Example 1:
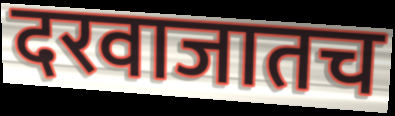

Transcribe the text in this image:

दरवाजातच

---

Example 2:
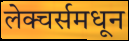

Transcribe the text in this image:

लेक्चर्समधून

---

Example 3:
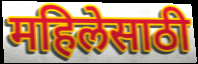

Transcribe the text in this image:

महिलेसाठी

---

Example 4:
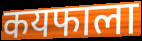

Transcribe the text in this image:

कयफाला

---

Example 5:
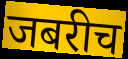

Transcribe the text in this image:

जबरीच